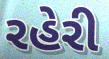
રહેરી